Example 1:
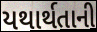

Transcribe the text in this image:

યથાર્થતાની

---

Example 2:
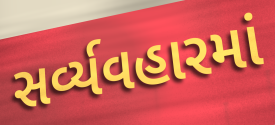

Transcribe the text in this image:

સર્વ્યવહારમાં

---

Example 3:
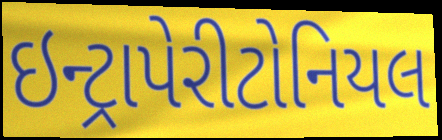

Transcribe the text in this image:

ઇન્ટ્રાપેરીટોનિયલ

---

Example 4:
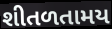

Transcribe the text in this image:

શીતળતામય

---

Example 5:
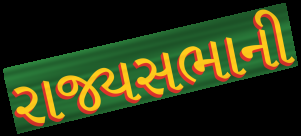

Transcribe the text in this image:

રાજ્યસભાની